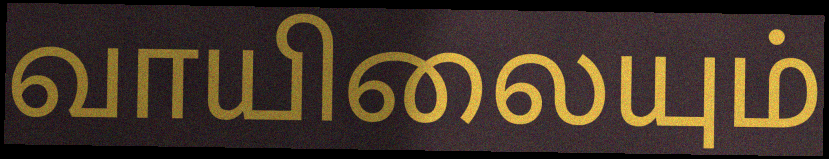
வாயிலையும்